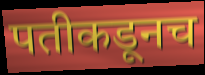
पतीकडूनच